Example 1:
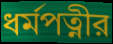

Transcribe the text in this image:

ধর্মপত্নীর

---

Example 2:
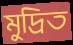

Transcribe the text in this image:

মুদ্রিত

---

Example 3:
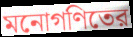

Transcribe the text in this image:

মনোগণিতের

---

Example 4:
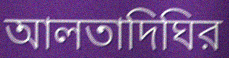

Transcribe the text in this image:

আলতাদিঘির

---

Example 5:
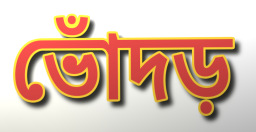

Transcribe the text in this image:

ভোঁদড়